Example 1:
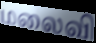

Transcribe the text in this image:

மலைவி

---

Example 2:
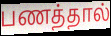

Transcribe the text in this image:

பணத்தால்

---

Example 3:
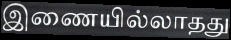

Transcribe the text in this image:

இணையில்லாதது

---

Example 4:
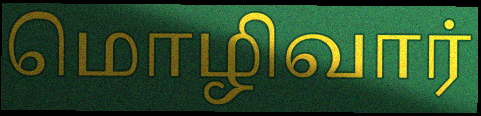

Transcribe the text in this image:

மொழிவார்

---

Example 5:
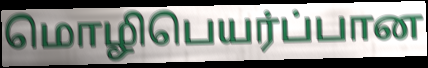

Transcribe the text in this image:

மொழிபெயர்ப்பான